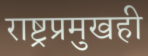
राष्ट्रप्रमुखही